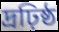
দ্রঢ়িষ্ঠ